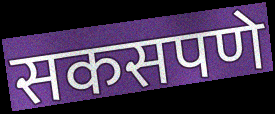
सकसपणे